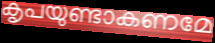
കൃപയുണ്ടാകണമേ